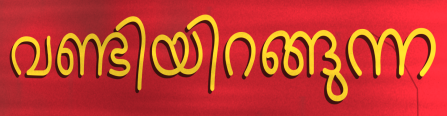
വണ്ടിയിറങ്ങുന്ന